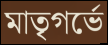
মাতৃগর্ভে